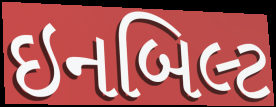
ઇનબિલ્ટ